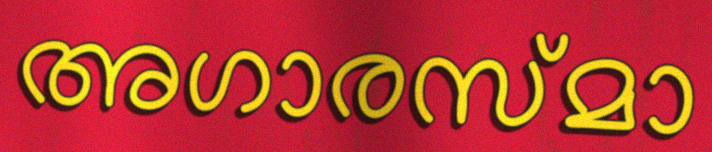
അഗാരസ്മാ